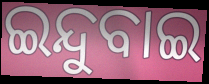
ଇନ୍ଦୁବାଇ